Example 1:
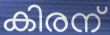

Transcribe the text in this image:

കിരന്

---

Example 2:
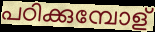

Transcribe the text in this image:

പഠിക്കുമ്പോള്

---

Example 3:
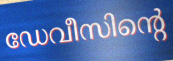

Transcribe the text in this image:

ഡേവീസിന്റെ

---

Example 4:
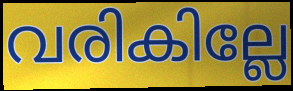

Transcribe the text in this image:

വരികില്ലേ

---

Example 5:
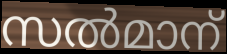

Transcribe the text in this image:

സൽമാന്